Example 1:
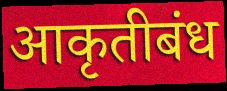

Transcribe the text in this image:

आकृतीबंध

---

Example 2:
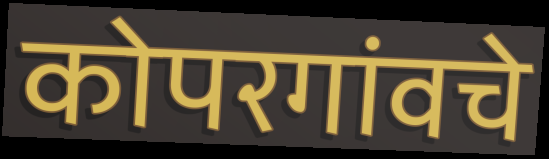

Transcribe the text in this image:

कोपरगांवचे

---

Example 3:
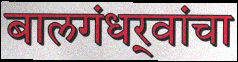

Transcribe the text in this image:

बालगंधर्वांचा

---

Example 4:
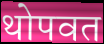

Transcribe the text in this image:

थोपवत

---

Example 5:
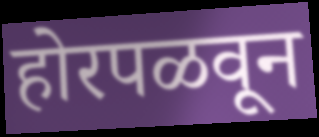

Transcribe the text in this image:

होरपळवून